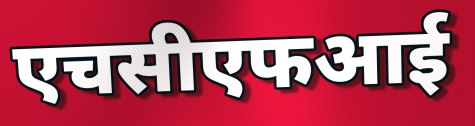
एचसीएफआई